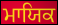
ਮਾਯਿਕ